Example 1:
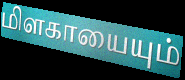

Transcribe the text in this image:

மிளகாயையும்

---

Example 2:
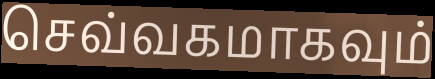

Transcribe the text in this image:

செவ்வகமாகவும்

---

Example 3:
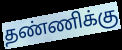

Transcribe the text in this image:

தண்ணிக்கு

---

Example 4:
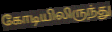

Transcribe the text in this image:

கோடியிலிருந்து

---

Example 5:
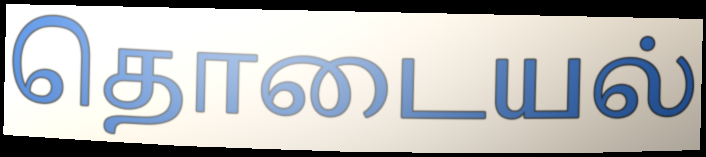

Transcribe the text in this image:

தொடையல்